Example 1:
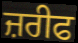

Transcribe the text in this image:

ਜ਼ਰੀਫ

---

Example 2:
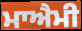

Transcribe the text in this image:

ਮਾਐਮੀ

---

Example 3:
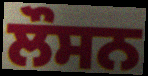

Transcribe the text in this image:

ਲੌਸਨ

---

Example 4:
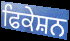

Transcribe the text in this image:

ਫਿਕੇਸ਼ਨ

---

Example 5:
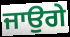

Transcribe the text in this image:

ਜਾਉਗੇ